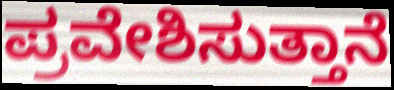
ಪ್ರವೇಶಿಸುತ್ತಾನೆ